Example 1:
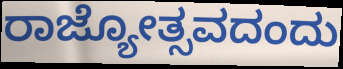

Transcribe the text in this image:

ರಾಜ್ಯೋತ್ಸವದಂದು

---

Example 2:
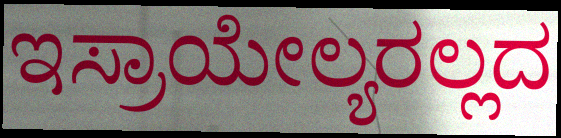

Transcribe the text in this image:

ಇಸ್ರಾಯೇಲ್ಯರಲ್ಲದ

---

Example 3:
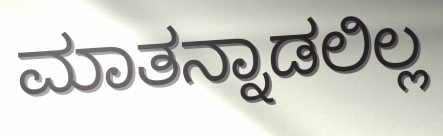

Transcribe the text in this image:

ಮಾತನ್ನಾಡಲಿಲ್ಲ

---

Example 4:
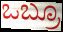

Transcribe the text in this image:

ಒಬ್ರೂ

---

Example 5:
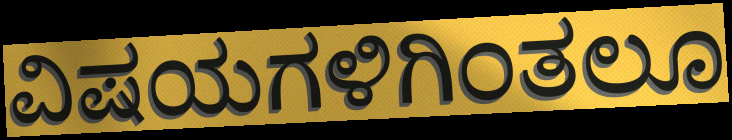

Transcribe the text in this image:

ವಿಷಯಗಳಿಗಿಂತಲೂ